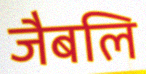
जैबलि